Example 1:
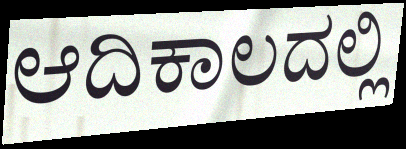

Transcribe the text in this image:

ಆದಿಕಾಲದಲ್ಲಿ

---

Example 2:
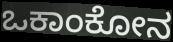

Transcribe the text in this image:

ಒಕಾಂಕೋನ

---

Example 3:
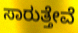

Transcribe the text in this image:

ಸಾರುತ್ತೇವೆ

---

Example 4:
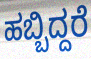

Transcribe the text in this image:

ಹಬ್ಬಿದ್ದರೆ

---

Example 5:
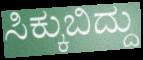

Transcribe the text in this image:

ಸಿಕ್ಕುಬಿದ್ದು